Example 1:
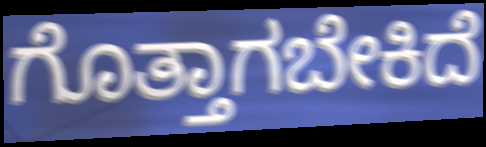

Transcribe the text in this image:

ಗೊತ್ತಾಗಬೇಕಿದೆ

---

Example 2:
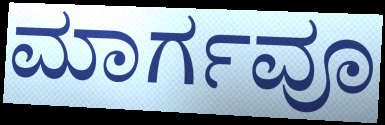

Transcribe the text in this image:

ಮಾರ್ಗವೂ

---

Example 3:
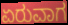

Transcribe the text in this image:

ಏರುವಾಗ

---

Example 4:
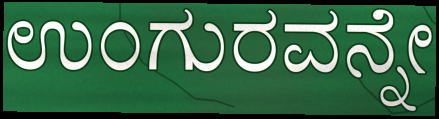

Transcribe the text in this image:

ಉಂಗುರವನ್ನೇ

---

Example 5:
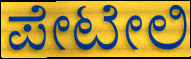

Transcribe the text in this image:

ಪೇಟೇಲಿ